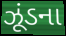
ઝૂંડના